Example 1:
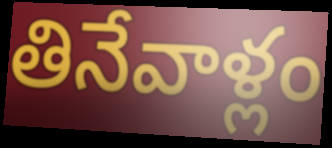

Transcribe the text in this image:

తినేవాళ్లం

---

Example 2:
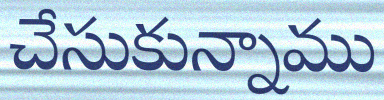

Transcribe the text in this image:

చేసుకున్నాము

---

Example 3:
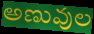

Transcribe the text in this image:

అణువుల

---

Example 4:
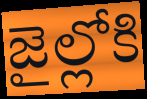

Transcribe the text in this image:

జైల్లోకి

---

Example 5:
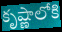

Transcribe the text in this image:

కృష్ణాలోకి